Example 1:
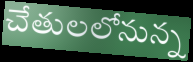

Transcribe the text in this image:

చేతులలోనున్న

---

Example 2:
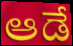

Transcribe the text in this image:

ఆడే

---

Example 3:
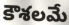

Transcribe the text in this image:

కౌశలమే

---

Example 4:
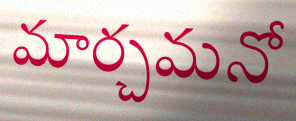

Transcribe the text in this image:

మార్చమనో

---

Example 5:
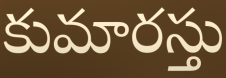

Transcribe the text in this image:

కుమారస్తు